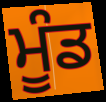
ਮੂੰਡ